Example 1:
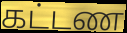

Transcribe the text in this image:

கட்டண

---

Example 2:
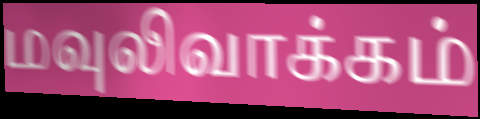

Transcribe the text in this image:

மவுலிவாக்கம்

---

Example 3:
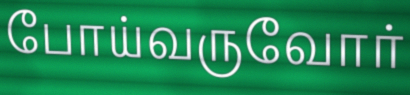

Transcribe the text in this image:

போய்வருவோர்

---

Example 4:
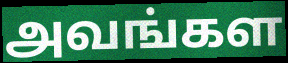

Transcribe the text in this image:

அவங்கள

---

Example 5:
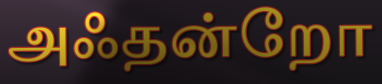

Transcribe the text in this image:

அஃதன்றோ